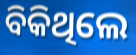
ବିକିଥିଲେ